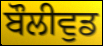
ਬੌਲੀਵੁਡ